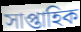
সাপ্তাহিক